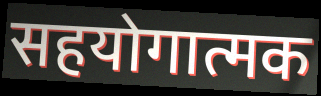
सहयोगात्मक